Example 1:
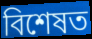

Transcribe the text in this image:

বিশেষত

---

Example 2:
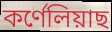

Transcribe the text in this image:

কৰ্ণেলিয়াছ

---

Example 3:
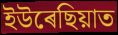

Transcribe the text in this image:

ইউৰেছিয়াত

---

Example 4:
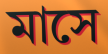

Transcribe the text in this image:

মাসে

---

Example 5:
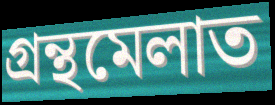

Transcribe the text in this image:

গ্ৰন্থমেলাত